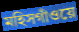
মহিসগাঁওয়ে